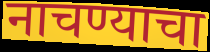
नाचण्याचा